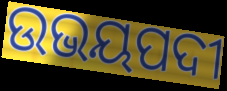
ଉଭୟପଦୀ